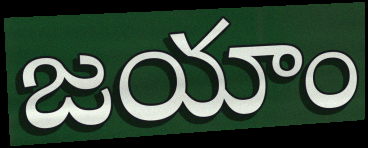
జయాం